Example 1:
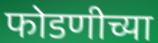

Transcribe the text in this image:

फोडणीच्या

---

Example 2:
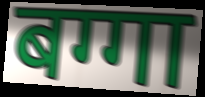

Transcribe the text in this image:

बग्गा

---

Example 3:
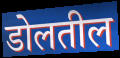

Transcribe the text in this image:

डोलतील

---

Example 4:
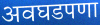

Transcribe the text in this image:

अवघडपणा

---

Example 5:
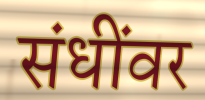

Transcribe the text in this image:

संधींवर